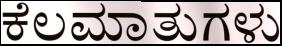
ಕೆಲಮಾತುಗಳು